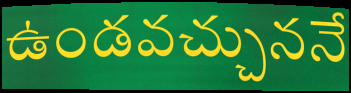
ఉండవచ్చుననే